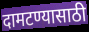
दामटण्यासाठी